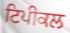
ਟਿਪੀਕਲ